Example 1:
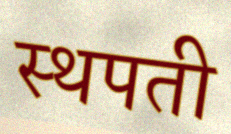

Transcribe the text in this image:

स्थपती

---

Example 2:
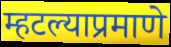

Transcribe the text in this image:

म्हटल्याप्रमाणे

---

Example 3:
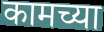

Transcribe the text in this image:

कामच्या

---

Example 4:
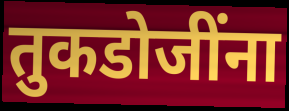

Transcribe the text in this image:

तुकडोजींना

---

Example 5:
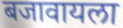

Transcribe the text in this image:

बजावायला